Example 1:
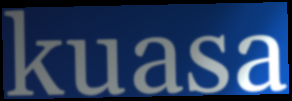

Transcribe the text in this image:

kuasa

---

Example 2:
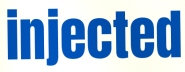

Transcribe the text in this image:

injected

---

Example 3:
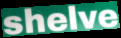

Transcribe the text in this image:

shelve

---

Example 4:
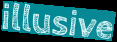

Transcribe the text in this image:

illusive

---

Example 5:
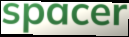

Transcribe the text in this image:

spacer